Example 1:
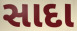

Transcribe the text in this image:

સાદા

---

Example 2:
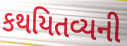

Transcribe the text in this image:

કથયિતવ્યની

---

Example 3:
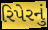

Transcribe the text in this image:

રિપેરનું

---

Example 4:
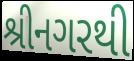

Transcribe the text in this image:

શ્રીનગરથી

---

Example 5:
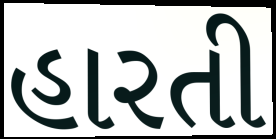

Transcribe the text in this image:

હારતી